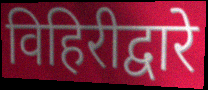
विहिरीद्वारे